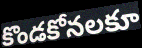
కొండకోనలకూ